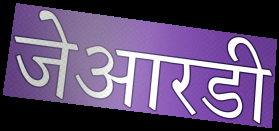
जेआरडी